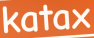
katax